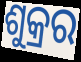
ଶୁକ୍ରର